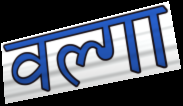
वल्गा